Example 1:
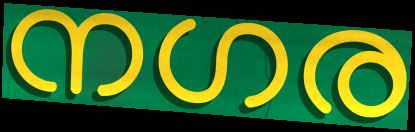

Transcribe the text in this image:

നഗര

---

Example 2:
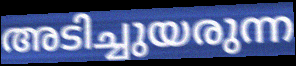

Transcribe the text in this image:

അടിച്ചുയരുന്ന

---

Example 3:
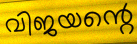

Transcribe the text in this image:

വിജയന്റെ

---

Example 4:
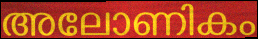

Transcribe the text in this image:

അലോണികം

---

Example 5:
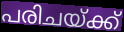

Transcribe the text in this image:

പരിചയ്ക്ക്